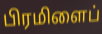
பிரமிளைப்